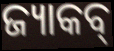
ଜ୍ୟାକବ୍